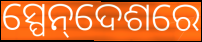
ସ୍ପେନ୍‌ଦେଶରେ